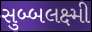
સુબ્બલક્ષ્મી